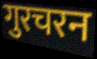
गुरचरन